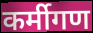
कर्मीगण